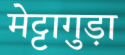
मेट्टागुड़ा